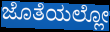
ಜೊತೆಯಲ್ಲೋ